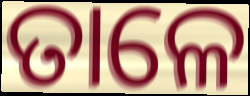
ତାଳେ